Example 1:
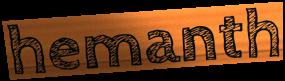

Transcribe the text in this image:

hemanth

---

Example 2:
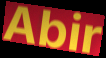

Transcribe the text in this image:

Abir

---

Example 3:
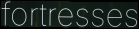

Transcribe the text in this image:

fortresses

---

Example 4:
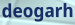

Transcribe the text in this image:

deogarh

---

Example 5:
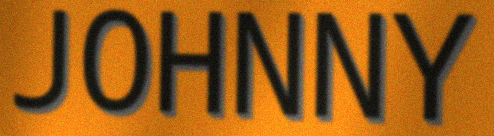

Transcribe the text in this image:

JOHNNY